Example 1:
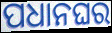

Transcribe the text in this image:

ପଧାନଘର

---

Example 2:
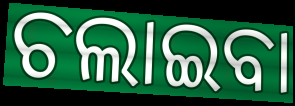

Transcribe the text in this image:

ଚଲାଇବା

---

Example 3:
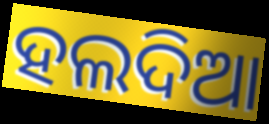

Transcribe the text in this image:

ହଲଦିଆ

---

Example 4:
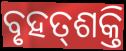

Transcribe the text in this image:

ବୃହତ୍‌ଶକ୍ତି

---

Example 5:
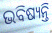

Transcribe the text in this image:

ଭବିଷ୍ୟନ୍ତି